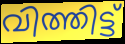
വിത്തിട്ട്